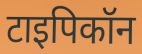
टाइपिकॉन